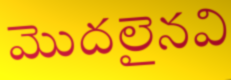
మొదలైనవి